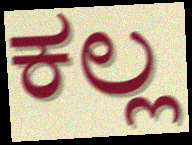
ಕಲ್ಲ